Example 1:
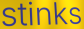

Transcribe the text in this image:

stinks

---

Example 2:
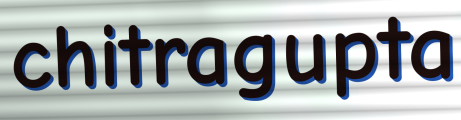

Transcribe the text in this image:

chitragupta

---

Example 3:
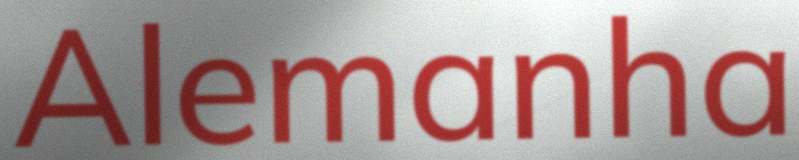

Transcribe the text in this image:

Alemanha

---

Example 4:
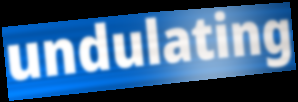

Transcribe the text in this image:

undulating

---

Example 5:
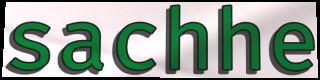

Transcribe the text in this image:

sachhe